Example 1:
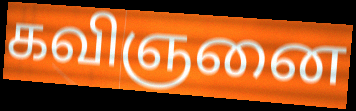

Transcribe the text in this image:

கவிஞனை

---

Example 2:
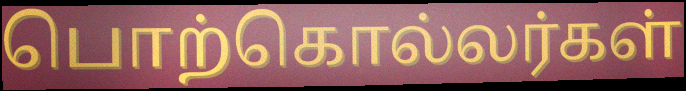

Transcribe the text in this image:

பொற்கொல்லர்கள்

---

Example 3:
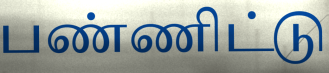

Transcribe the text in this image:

பண்ணிட்டு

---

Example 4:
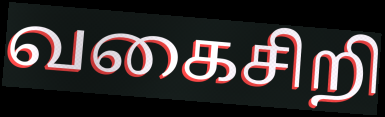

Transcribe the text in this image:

வகைசிறி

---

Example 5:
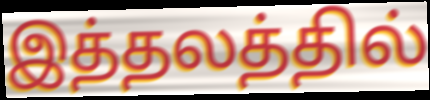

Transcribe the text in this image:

இத்தலத்தில்